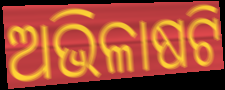
ଅଭିଳାଷଟି